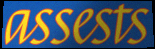
assests